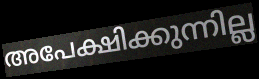
അപേക്ഷിക്കുന്നില്ല